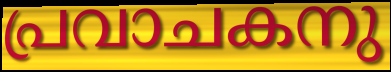
പ്രവാചകനു